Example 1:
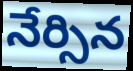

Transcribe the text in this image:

నేర్సిన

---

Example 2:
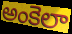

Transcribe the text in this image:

అంకెలా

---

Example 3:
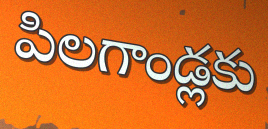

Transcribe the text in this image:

పిలగాండ్లకు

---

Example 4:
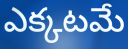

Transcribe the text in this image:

ఎక్కటమే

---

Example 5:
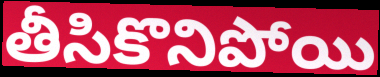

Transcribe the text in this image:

తీసికొనిపోయి